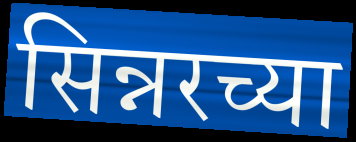
सिन्नरच्या